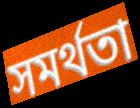
সমর্থতা